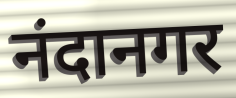
नंदानगर